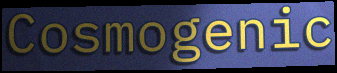
Cosmogenic